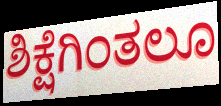
ಶಿಕ್ಷೆಗಿಂತಲೂ